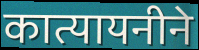
कात्यायनीने